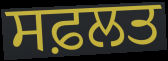
ਸਫ਼ਲਤ